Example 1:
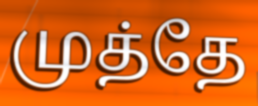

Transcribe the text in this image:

முத்தே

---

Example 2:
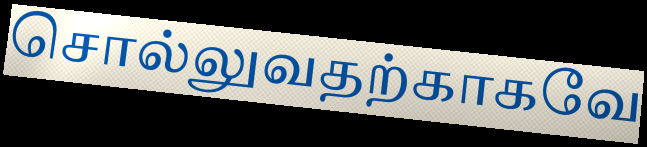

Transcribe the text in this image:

சொல்லுவதற்காகவே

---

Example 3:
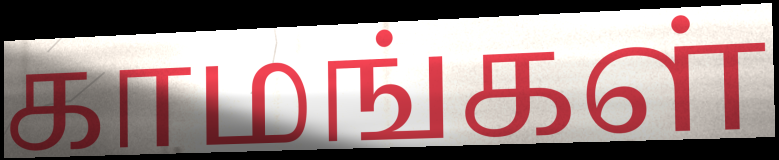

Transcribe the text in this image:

காமங்கள்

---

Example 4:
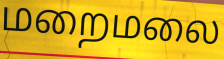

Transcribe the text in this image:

மறைமலை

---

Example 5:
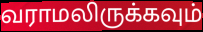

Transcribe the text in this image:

வராமலிருக்கவும்